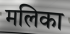
मलिका